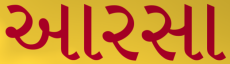
આરસા